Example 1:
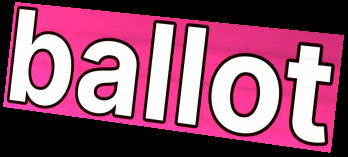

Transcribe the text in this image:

ballot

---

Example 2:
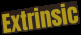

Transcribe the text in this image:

Extrinsic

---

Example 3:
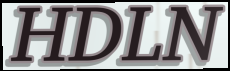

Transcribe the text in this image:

HDLN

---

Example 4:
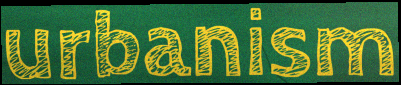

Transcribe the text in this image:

urbanism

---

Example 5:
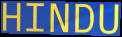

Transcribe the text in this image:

HINDU